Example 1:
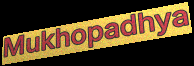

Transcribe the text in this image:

Mukhopadhya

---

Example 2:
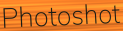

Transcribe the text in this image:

Photoshot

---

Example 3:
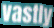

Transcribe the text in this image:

vastly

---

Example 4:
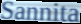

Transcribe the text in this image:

Sannita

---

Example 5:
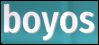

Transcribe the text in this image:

boyos